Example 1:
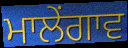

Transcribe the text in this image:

ਮਾਲੇਂਗਾਵ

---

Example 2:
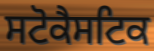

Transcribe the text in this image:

ਸਟੋਕੈਸਟਿਕ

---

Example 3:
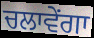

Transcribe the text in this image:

ਚਲਾਵੇਂਗਾ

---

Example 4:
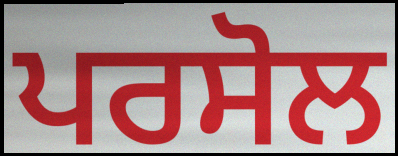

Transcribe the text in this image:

ਪਰਸੋਲ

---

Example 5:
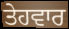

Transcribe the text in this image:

ਤੇਹਵਾਰ